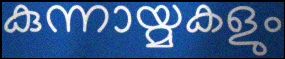
കുന്നായ്മകളും